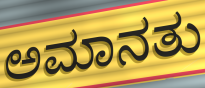
ಅಮಾನತು